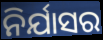
ନିର୍ଯାସର